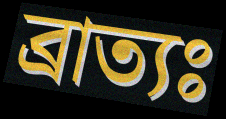
ব্রাত্যঃ